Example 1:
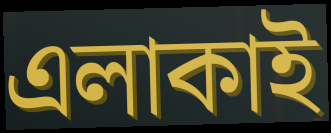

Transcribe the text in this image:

এলাকাই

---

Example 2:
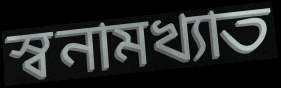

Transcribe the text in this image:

স্বনামখ্যাত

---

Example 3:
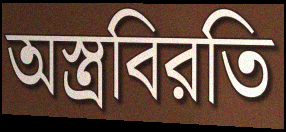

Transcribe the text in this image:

অস্ত্রবিরতি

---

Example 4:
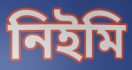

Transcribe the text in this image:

নিইমি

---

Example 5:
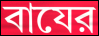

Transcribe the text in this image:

বাযের